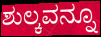
ಶುಲ್ಕವನ್ನೂ